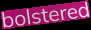
bolstered